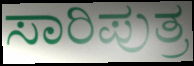
ಸಾರಿಪುತ್ರ